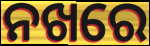
ନଖରେ